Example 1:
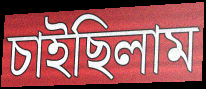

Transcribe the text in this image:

চাইছিলাম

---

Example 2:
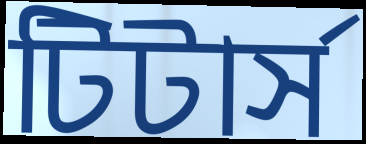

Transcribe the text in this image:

টিটার্স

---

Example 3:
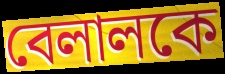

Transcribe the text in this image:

বেলালকে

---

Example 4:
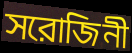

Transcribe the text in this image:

সরোজিনী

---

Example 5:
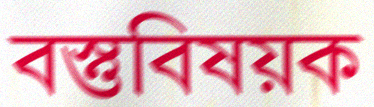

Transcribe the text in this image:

বস্তুবিষয়ক